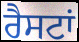
ਰੈਸਟਾਂ